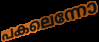
പകലെന്നോ